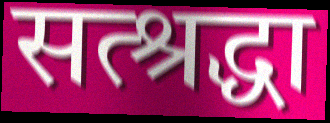
सत्श्रद्धा